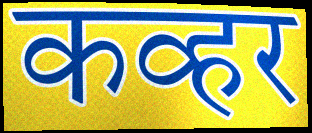
कव्हर